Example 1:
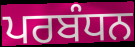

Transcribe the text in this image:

ਪਰਬੰਧਨ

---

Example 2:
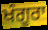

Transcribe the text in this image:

ਖੰਗੂਰਾ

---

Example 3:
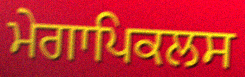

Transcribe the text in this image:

ਮੇਗਾਪਿਕਲਸ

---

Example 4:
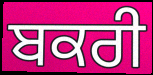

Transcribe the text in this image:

ਬਕਰੀ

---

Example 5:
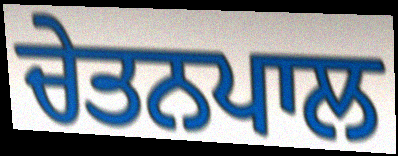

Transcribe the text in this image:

ਚੇਤਨਪਾਲ